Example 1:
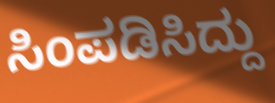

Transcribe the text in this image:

ಸಿಂಪಡಿಸಿದ್ದು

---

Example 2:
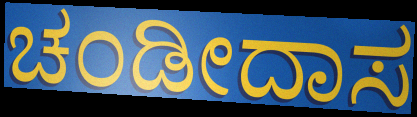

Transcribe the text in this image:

ಚಂಡೀದಾಸ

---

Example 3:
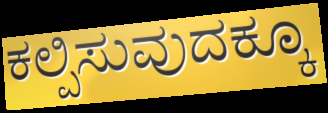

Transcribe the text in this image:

ಕಲ್ಪಿಸುವುದಕ್ಕೂ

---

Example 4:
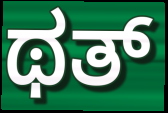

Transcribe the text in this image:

ಥತ್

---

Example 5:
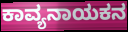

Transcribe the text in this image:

ಕಾವ್ಯನಾಯಕನ